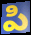
పి